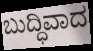
ಬುದ್ಧಿವಾದ